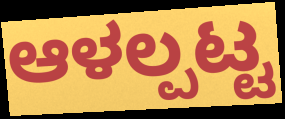
ಆಳಲ್ಪಟ್ಟ